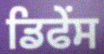
ਡਿਫੇਂਸ